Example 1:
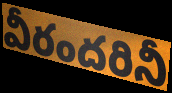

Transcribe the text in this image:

వీరందరినీ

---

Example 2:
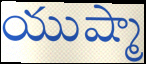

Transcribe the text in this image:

యుష్మా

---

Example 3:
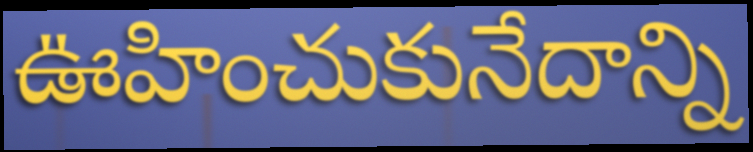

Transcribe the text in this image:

ఊహించుకునేదాన్ని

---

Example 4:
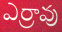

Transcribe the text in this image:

ఎర్రావు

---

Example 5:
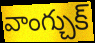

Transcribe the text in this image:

వాంగ్చుక్